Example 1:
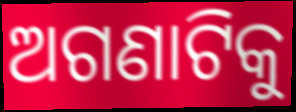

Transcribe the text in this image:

ଅଗଣାଟିକୁ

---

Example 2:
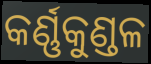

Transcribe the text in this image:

କର୍ଣ୍ଣକୁଣ୍ଡଳ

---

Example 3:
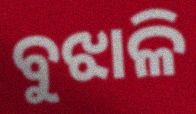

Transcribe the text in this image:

ବୁଝାଳି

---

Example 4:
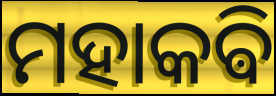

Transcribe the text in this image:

ମହାକଵି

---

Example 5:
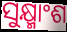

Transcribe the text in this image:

ସୁକ୍ଷ୍ମାଂଶ